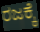
ರಜಕ್ಕೆ